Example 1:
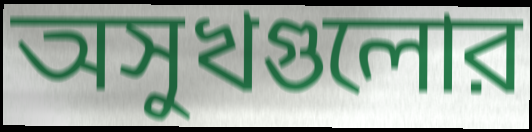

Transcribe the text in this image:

অসুখগুলোর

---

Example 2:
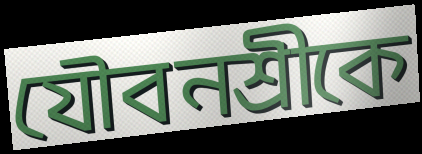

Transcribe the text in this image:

যৌবনশ্রীকে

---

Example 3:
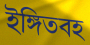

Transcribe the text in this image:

ইঙ্গিতবহ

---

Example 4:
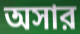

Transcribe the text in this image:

অসার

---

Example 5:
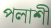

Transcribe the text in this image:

পলাশী